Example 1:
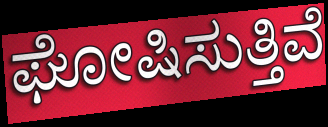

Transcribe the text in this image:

ಘೋಷಿಸುತ್ತಿವೆ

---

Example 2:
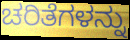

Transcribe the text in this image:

ಚರಿತೆಗಳನ್ನು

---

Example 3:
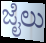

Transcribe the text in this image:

ಜೈಲು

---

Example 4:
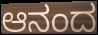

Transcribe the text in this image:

ಆನಂದ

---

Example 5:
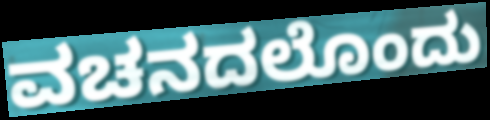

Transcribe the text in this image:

ವಚನದಲೊಂದು